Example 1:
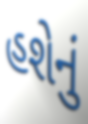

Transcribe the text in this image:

હશેનું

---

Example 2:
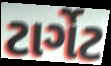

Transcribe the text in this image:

ટાર્ગેટ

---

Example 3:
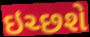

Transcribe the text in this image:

ઇચ્છશે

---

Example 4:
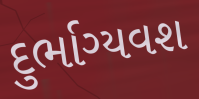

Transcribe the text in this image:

દુર્ભાગ્યવશ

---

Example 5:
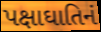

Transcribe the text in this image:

પક્ષાઘાતિનં